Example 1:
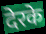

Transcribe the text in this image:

देरके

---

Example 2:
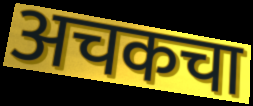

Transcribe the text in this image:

अचकचा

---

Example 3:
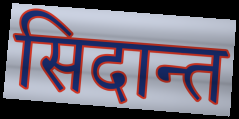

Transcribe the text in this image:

सिदान्त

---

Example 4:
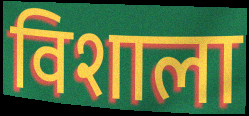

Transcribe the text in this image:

विशाला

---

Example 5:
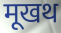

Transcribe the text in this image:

मूखथ